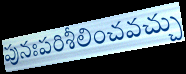
పునఃపరిశీలించవచ్చు